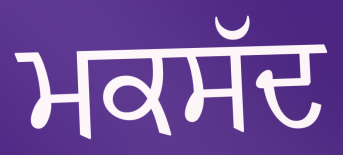
ਮਕਸੱਦ